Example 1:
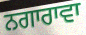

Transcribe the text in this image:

ਨਗਾਰਾਵਾ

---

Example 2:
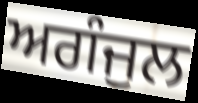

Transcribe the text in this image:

ਅਗੰਜੁਲ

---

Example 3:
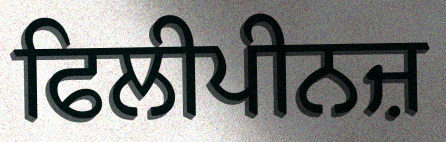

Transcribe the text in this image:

ਫਿਲੀਪੀਨਜ਼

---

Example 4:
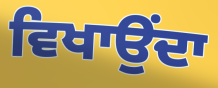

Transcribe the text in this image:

ਵਿਖਾਉਂਦਾ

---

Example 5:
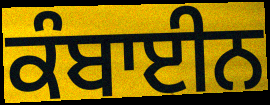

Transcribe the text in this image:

ਕੰਬਾਈਨ